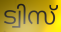
ട്വിസ്